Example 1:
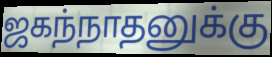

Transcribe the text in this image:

ஜகந்நாதனுக்கு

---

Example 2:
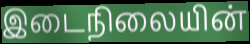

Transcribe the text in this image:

இடைநிலையின்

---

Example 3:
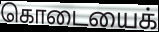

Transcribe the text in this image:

கொடையைக்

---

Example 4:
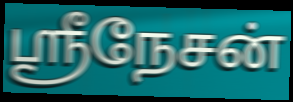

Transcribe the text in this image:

ஸ்ரீநேசன்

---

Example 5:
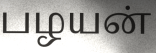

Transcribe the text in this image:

பழயன்